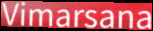
Vimarsana